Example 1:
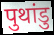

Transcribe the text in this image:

पुथांडु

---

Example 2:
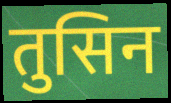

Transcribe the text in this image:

तुसिन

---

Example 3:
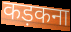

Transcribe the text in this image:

कड़कना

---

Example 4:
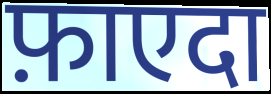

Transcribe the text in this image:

फ़ाएदा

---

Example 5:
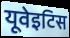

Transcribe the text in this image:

यूवेइटिस